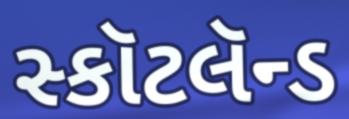
સ્કૉટલૅન્ડ